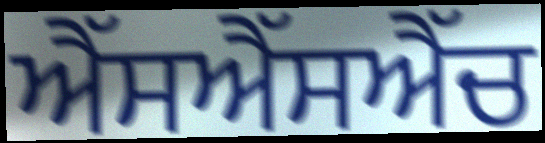
ਐੱਸਐੱਸਐੱਚ